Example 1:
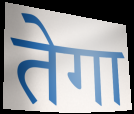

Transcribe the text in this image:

तेगा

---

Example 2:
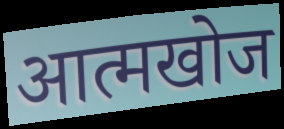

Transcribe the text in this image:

आत्मखोज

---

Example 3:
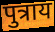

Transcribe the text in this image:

पुत्राय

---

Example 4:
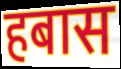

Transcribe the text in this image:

हबास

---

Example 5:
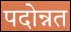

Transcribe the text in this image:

पदोन्नत